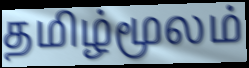
தமிழ்மூலம்